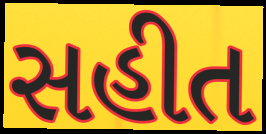
સહીત